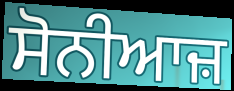
ਸੋਨੀਆਜ਼